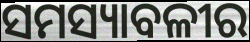
ସମସ୍ୟାବଳୀର